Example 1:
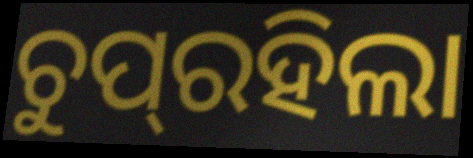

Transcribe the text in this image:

ଚୁପ୍‌ରହିଲା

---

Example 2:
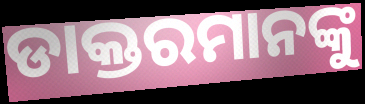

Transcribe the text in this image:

ଡାକ୍ତରମାନଙ୍କୁ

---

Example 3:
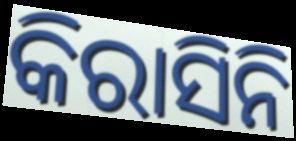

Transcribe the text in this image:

କିରାସିନି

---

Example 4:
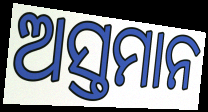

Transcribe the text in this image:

ଅସ୍ତମାନ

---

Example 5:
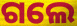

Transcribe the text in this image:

ଗଲେ